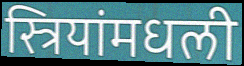
स्त्रियांमधली